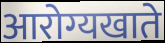
आरोग्यखाते